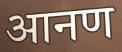
आनण